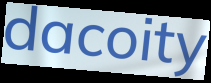
dacoity